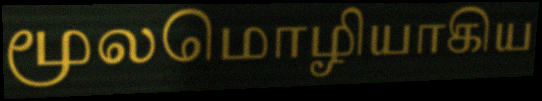
மூலமொழியாகிய